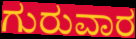
ಗುರುವಾರ